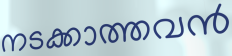
നടക്കാത്തവൻ